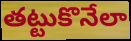
తట్టుకొనేలా